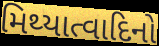
મિથ્યાત્વાદિનો